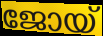
ജോയ്